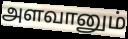
அளவானும்